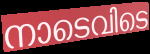
നാടെവിടെ